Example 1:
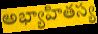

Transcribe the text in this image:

అభ్యాహితస్య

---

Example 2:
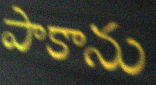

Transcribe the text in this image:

పాకాను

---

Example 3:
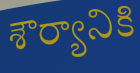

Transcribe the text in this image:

శౌర్యానికి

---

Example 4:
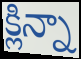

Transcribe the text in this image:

క్లిన్నా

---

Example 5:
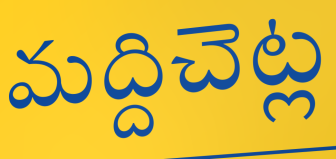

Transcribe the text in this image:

మద్దిచెట్ల